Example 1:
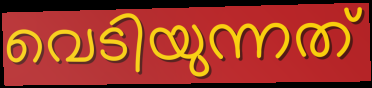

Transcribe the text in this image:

വെടിയുന്നത്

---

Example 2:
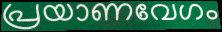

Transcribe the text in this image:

പ്രയാണവേഗം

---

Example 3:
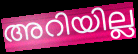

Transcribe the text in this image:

അറിയില്ല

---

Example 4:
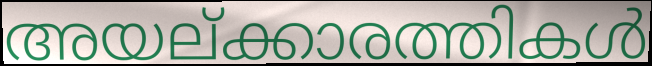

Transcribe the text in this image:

അയല്ക്കാരത്തികൾ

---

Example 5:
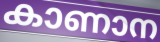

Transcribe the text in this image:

കാണാന